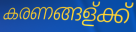
കരണങ്ങള്ക്ക്